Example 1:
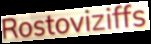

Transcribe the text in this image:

Rostoviziffs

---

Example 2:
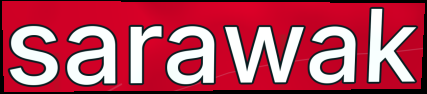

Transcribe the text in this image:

sarawak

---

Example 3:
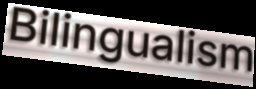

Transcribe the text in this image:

Bilingualism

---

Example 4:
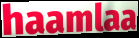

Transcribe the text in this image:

haamlaa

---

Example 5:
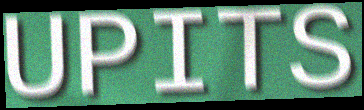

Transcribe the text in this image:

UPITS